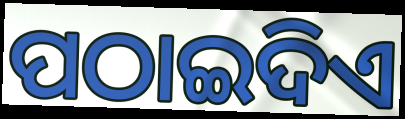
ପଠାଇଦିଏ